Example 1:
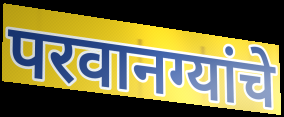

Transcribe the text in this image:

परवानग्यांचे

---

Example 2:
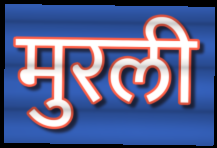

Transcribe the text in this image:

मुरली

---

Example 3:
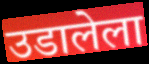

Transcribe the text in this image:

उडालेला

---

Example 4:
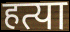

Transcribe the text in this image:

हत्या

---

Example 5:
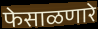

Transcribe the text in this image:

फेसाळणारे